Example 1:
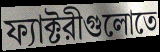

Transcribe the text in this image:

ফ্যাক্টরীগুলোতে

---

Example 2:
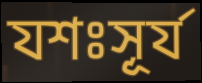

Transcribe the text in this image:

যশঃসূর্য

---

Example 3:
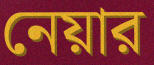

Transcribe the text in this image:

নেয়ার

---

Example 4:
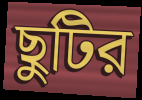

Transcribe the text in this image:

ছুটির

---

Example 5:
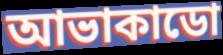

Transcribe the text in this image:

আভাকাডো